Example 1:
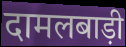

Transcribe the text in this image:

दामलबाड़ी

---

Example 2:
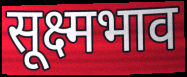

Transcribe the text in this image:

सूक्ष्मभाव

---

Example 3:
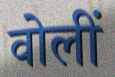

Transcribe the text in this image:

वोलीं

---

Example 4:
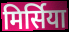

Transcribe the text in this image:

मिर्सिया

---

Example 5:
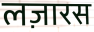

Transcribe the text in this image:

लज़ारस